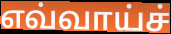
எவ்வாய்ச்